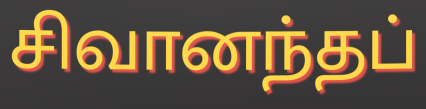
சிவானந்தப்